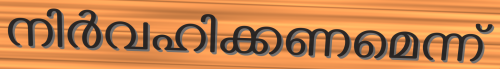
നിർവഹിക്കണമെന്ന്